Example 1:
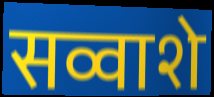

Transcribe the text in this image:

सव्वाशे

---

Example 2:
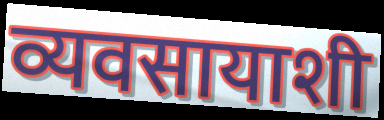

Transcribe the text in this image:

व्यवसायाशी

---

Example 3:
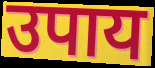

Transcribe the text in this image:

उपाय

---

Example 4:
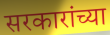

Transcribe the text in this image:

सरकारांच्या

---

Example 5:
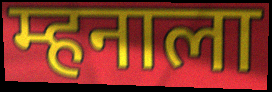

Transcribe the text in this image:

म्हनाला